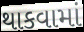
થાકવામાં